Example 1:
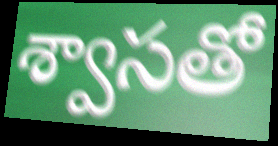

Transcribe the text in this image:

శ్వాసతో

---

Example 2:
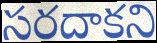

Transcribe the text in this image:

సరదాకని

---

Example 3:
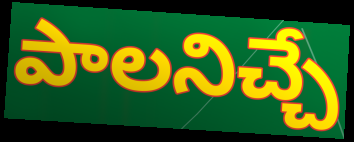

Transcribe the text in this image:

పాలనిచ్చే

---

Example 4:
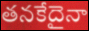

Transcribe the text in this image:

తనకేదైనా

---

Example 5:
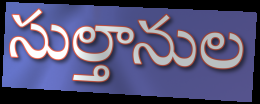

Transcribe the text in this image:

సుల్తానుల